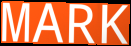
MARK